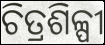
ଚିତ୍ରଶିଳ୍ପୀ